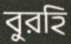
বুরহি